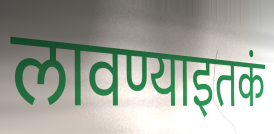
लावण्याइतकं